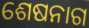
ଶେଷନାଗ